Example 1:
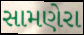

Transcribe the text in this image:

સામણેરા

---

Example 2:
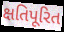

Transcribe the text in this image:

ક્ષતિપૂરિત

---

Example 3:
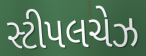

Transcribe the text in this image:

સ્ટીપલચેઝ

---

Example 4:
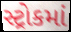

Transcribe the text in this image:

સ્ટ્રોકમાં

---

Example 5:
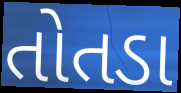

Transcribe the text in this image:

તોતડા